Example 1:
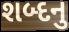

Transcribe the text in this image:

શબ્દનુ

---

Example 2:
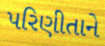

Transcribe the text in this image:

પરિણીતાને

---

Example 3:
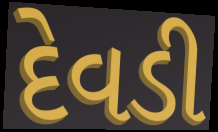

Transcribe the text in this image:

દેવડી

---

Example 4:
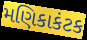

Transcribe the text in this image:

મણિકાકંટક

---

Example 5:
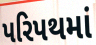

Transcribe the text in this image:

પરિપથમાં